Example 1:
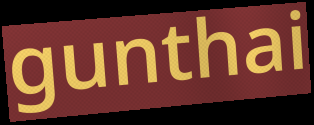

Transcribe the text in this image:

gunthai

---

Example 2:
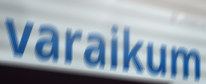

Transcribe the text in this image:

varaikum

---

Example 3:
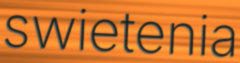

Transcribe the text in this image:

swietenia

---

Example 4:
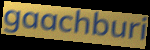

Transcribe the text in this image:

gaachburi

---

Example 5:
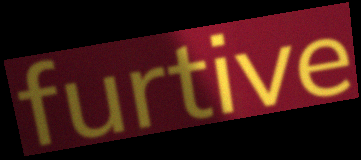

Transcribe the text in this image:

furtive